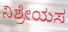
ನಿಶ್ರೇಯಸ